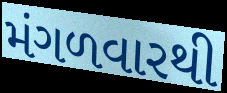
મંગળવારથી